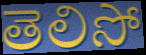
తెలిసో